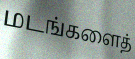
மடங்களைத்